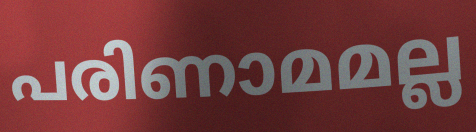
പരിണാമമല്ല